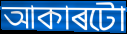
আকাৰটো